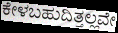
ಕೇಳಬಹುದಿತ್ತಲ್ಲವೇ